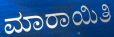
ಮಾರಾಯಿತಿ